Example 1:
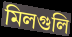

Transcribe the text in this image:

মিলগুলি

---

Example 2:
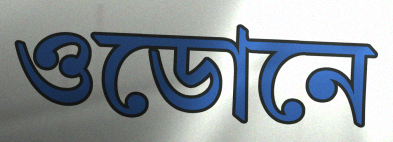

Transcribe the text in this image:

ওডোনে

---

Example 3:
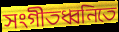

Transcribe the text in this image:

সংগীতধ্বনিতে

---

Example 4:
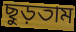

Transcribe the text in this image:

ছুড়তাম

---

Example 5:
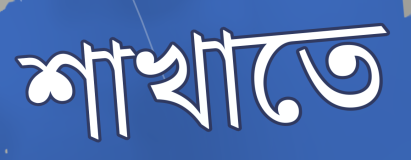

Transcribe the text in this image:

শাখাতে